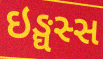
ઇઙ્ઘસ્સ